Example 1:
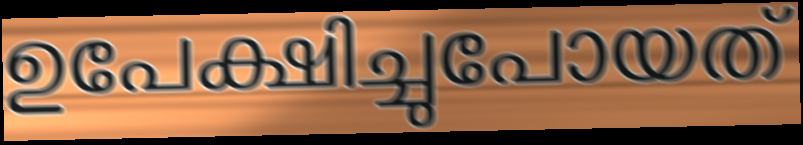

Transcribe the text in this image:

ഉപേക്ഷിച്ചുപോയത്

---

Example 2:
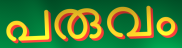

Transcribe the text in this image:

പരുവം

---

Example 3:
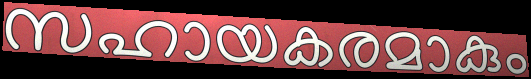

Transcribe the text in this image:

സഹായകരമാകും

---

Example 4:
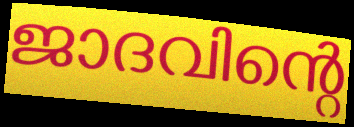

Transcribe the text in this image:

ജാദവിന്റെ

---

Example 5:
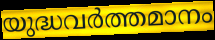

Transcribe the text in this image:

യുദ്ധവർത്തമാനം